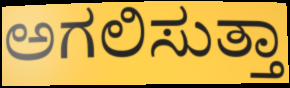
ಅಗಲಿಸುತ್ತಾ